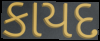
કાયદ